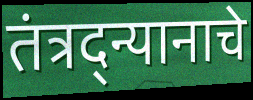
तंत्रद्न्यानाचे